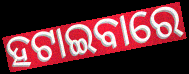
ହଟାଇବାରେ